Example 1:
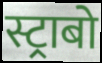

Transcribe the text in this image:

स्ट्राबो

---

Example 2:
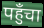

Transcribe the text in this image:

पहुँचा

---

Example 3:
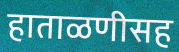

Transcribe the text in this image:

हाताळणीसह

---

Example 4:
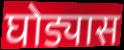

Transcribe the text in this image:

घोड्यास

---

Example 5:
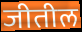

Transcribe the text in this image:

जीतील